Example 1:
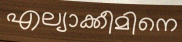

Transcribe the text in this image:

എല്യാക്കീമിനെ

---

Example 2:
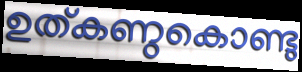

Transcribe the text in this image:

ഉത്കണ്ഠകൊണ്ടു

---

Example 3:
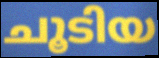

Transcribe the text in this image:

ചൂടിയ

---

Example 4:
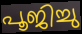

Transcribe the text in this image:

പൂജിച്ചു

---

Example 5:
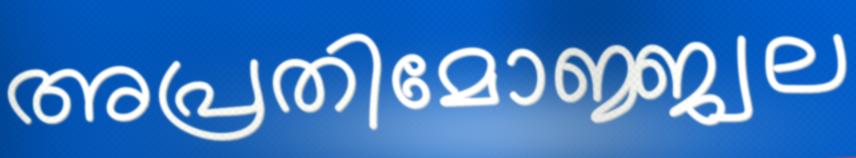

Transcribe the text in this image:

അപ്രതിമോജ്ജ്വല